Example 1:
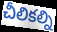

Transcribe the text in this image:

చీలికల్ని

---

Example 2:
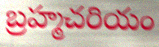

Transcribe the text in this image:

బ్రహ్మచరియం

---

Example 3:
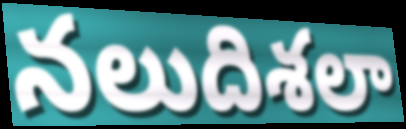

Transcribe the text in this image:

నలుదిశలా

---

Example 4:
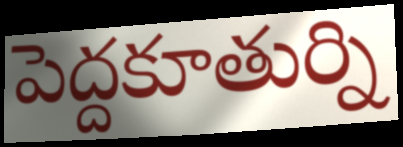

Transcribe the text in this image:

పెద్దకూతుర్ని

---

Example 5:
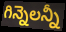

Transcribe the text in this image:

గిన్నెలన్నీ